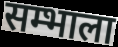
सम्भाला